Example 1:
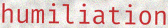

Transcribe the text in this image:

humiliation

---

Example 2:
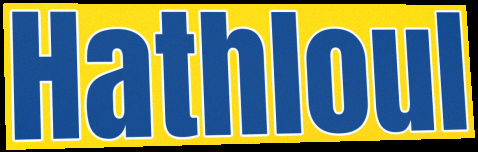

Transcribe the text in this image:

Hathloul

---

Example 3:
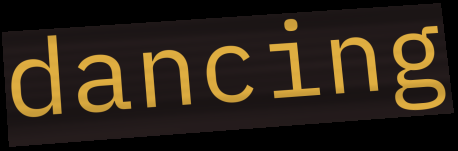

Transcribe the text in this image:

dancing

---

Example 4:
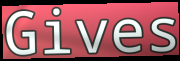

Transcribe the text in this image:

Gives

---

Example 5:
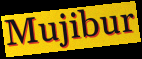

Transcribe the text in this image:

Mujibur